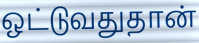
ஒட்டுவதுதான்